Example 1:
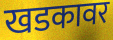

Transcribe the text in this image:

खडकावर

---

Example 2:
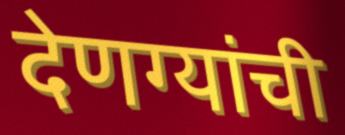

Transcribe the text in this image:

देणग्यांची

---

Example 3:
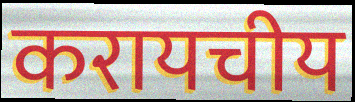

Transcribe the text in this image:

करायचीय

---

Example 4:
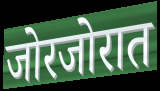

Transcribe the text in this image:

जोरजोरात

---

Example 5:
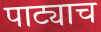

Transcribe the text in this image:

पाट्याच